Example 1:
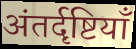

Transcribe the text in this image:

अंतर्दृष्टियाँ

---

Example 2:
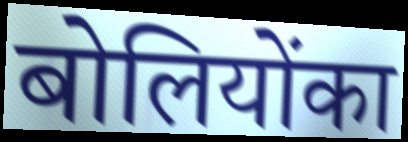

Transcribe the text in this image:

बोलियोंका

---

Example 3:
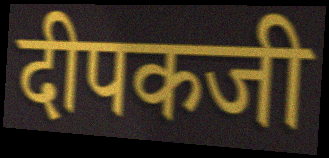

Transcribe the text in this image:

दीपकजी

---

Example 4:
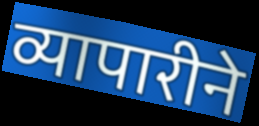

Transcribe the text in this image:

व्यापारीने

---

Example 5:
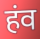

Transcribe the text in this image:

हंव